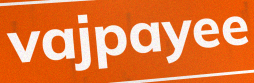
vajpayee